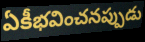
ఏకీభవించనప్పుడు